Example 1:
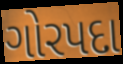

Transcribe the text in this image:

ગોરપદા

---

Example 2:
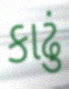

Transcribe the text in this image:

કાઢું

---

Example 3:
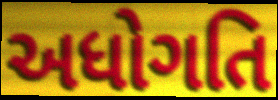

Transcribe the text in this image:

અધોગતિ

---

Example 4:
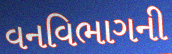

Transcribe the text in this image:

વનવિભાગની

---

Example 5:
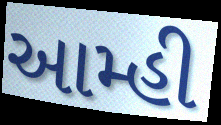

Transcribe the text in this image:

આમ્હી